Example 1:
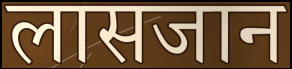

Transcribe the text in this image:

लासजान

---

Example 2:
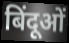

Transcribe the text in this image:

बिंदूओं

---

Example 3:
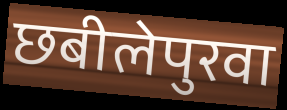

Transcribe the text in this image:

छबीलेपुरवा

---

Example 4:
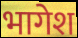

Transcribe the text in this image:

भागेश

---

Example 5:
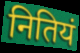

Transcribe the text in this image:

नितियं